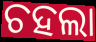
ଚହଲା